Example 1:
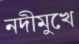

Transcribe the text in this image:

নদীমুখে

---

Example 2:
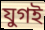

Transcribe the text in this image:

যুগই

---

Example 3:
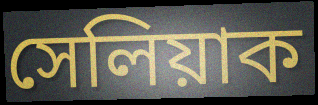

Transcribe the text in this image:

সেলিয়াক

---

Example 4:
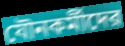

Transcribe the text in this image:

যৌনকর্মীদের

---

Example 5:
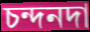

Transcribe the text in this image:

চন্দনদা